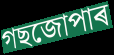
গছজোপাৰ